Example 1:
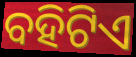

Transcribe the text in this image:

ବହିଟିଏ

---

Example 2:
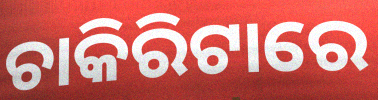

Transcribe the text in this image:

ଚାକିରିଟାରେ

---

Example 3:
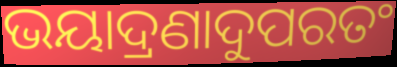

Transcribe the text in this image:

ଭୟାଦ୍ରଣାଦୁପରତଂ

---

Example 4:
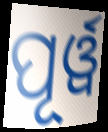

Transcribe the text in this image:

ପୂର୍ୱ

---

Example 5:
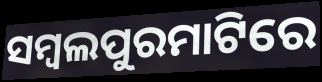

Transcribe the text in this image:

ସମ୍ବଲପୁରମାଟିରେ